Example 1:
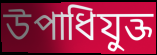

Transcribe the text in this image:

উপাধিযুক্ত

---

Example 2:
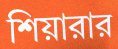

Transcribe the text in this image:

শিয়ারার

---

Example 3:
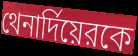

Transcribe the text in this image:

থেনার্দিয়েরকে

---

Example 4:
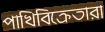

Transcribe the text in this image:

পাখিবিক্রেতারা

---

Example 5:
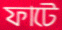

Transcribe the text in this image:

ফাটে